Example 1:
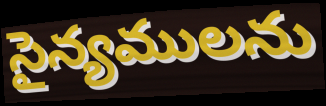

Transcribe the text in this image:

సైన్యములను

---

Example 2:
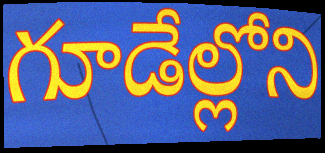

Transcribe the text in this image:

గూడేల్లోని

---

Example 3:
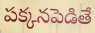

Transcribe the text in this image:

పక్కనపెడితే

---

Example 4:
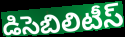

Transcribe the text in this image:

డిసెబిలిటీస్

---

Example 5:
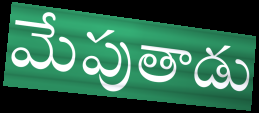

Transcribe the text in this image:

మేపుతాడు